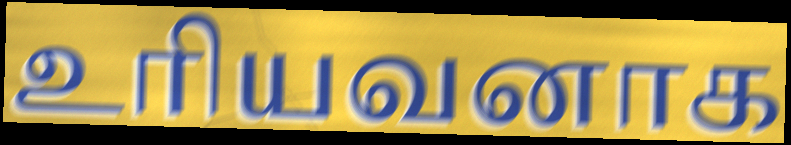
உரியவனாக